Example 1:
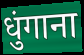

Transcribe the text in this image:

धुंगाना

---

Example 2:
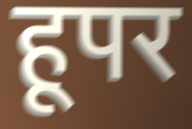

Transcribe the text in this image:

हूपर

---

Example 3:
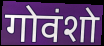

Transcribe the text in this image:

गोवंशो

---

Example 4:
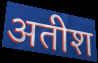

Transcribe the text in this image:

अतीश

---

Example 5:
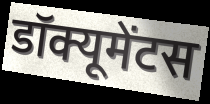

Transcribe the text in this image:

डॉक्यूमेंटस